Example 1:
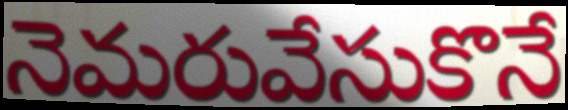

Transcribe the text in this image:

నెమరువేసుకొనే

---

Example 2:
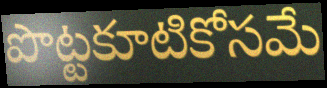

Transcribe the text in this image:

పొట్టకూటికోసమే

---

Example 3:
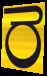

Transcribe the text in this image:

రె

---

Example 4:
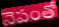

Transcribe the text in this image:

నెపంతో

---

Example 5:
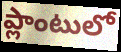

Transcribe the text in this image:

ప్లాంటులో